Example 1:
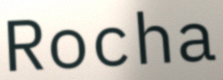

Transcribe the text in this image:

Rocha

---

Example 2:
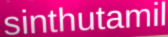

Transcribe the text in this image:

sinthutamil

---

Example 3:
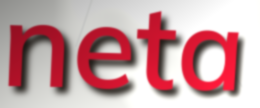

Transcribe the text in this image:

neta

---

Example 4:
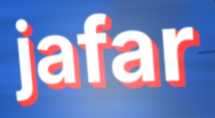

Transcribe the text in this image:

jafar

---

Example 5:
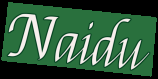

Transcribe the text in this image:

Naidu